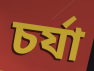
চর্যা